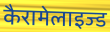
कैरामेलाइज्ड